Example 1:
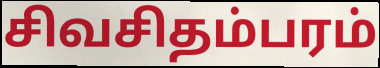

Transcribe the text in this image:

சிவசிதம்பரம்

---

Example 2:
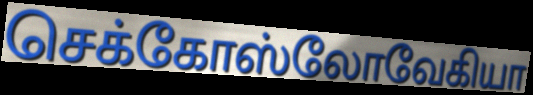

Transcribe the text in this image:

செக்கோஸ்லோவேகியா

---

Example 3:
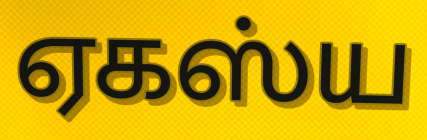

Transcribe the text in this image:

ஏகஸ்ய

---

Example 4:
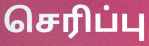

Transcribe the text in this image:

செரிப்பு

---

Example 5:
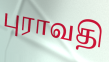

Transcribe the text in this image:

புராவதி